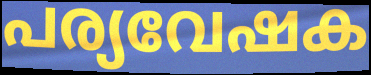
പര്യവേഷക